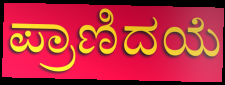
ಪ್ರಾಣಿದಯೆ